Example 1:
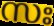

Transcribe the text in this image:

സഃ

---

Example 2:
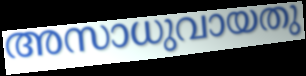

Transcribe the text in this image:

അസാധുവായതു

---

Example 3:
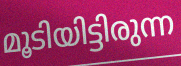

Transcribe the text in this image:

മൂടിയിട്ടിരുന്ന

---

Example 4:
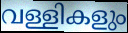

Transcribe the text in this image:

വള്ളികളും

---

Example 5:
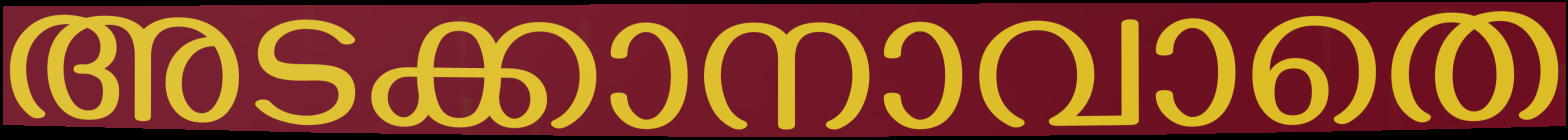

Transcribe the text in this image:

അടക്കാനാവാതെ